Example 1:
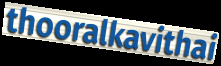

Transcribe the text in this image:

thooralkavithai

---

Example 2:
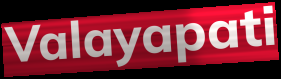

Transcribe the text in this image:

Valayapati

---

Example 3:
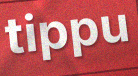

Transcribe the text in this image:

tippu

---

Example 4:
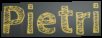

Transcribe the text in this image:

Pietri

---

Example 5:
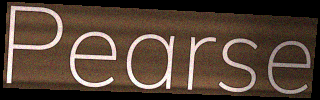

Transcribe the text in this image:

Pearse